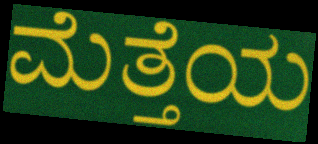
ಮೆತ್ತೆಯ